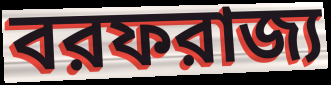
বরফরাজ্য